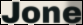
Jone